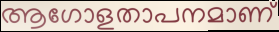
ആഗോളതാപനമാണ്